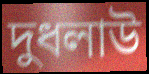
দুধলাউ